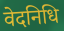
वेदनिधि